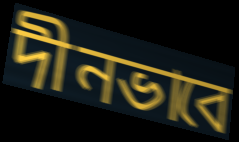
দীনভাবে